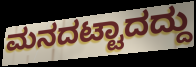
ಮನದಟ್ಟಾದದ್ದು